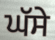
ਘੱਸੇ